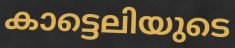
കാട്ടെലിയുടെ